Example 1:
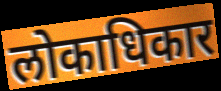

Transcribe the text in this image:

लोकाधिकार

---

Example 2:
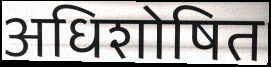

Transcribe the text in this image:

अधिशोषित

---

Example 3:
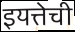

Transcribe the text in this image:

इयत्तेची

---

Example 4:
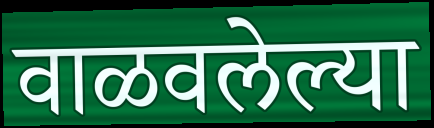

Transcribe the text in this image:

वाळवलेल्या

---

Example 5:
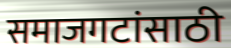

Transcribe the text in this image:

समाजगटांसाठी